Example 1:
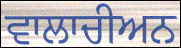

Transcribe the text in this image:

ਵਾਲਾਚੀਅਨ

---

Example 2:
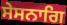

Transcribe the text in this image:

ਸੇਸਨਾਗਿ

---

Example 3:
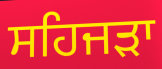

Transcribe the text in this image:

ਸਹਿਜੜਾ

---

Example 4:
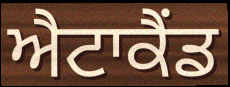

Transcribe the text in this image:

ਐਟਾਕੈਂਡ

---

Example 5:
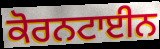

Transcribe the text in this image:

ਕੋਰਨਟਾਈਨ